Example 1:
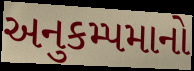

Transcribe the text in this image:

અનુકમ્પમાનો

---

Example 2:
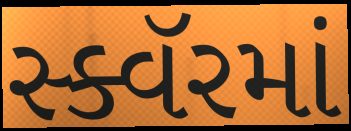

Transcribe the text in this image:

સ્ક્વૅરમાં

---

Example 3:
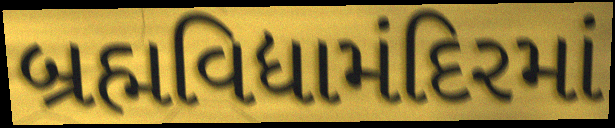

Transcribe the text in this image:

બ્રહ્મવિદ્યામંદિરમાં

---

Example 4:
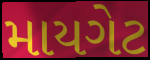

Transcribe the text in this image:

માયગેટ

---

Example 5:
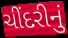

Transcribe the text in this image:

ચીંદરીનું